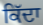
ਕਿੱਦਾ